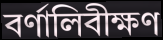
বর্ণালিবীক্ষণ